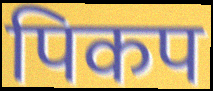
पिकप